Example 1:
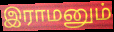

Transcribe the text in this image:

இராமனும்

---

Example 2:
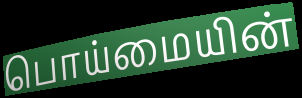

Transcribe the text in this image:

பொய்மையின்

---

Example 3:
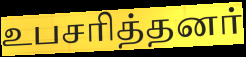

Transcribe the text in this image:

உபசரித்தனர்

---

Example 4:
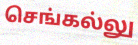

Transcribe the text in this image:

செங்கல்லு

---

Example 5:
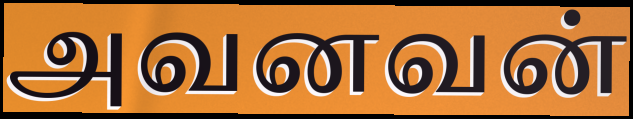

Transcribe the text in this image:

அவனவன்